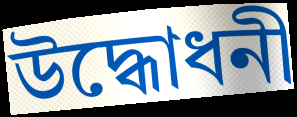
উদ্ধোধনী